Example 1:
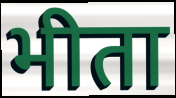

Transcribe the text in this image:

भीता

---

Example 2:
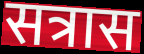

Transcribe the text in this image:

सत्रास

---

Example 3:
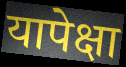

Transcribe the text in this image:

यापेक्षा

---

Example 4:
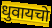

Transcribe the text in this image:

धुवायचो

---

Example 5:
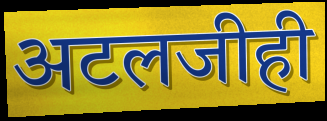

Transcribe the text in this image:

अटलजीही